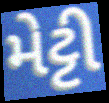
મેટ્ટી